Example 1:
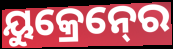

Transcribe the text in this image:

ୟୁକ୍ରେନ୍‍ରେ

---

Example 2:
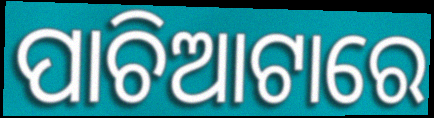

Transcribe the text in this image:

ପାଚିଆଟାରେ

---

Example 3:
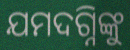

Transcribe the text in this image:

ଯମଦଗ୍ନିଙ୍କୁ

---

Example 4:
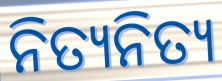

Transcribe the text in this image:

ନିତ୍ୟନିତ୍ୟ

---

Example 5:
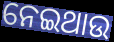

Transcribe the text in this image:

ନେଇଥାଉ